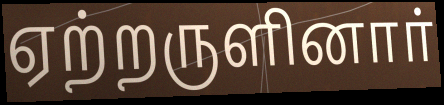
ஏற்றருளினார்